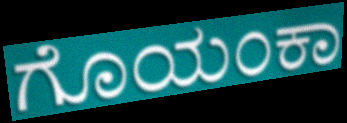
ಗೊಯಂಕಾ